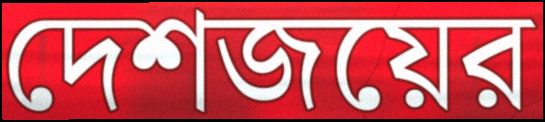
দেশজয়ের